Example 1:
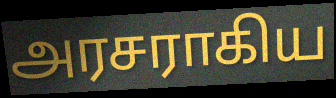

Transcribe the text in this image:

அரசராகிய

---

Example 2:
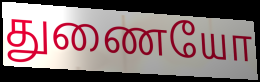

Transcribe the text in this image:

துணையோ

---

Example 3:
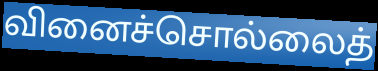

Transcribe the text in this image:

வினைச்சொல்லைத்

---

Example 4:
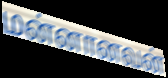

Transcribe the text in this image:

மன்னானவன்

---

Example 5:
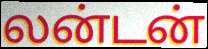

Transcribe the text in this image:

லன்டன்